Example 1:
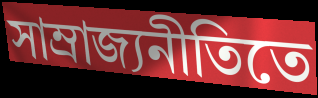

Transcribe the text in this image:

সাম্রাজ্যনীতিতে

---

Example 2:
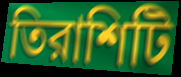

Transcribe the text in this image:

তিরাশিটি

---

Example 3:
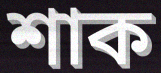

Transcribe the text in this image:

শাক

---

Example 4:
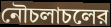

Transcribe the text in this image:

নৌচলাচলের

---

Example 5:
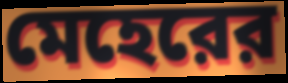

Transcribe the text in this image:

মেহেরের